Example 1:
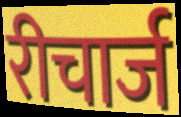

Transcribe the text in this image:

रीचार्ज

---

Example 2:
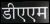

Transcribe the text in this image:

डीएएम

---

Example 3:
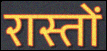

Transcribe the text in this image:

रास्‍तों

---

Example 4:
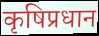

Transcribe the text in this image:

कृषिप्रधान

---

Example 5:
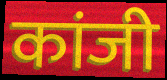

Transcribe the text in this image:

कांजी